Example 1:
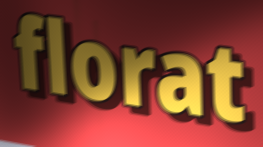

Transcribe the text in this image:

florat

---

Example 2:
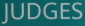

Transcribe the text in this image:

JUDGES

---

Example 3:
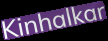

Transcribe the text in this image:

Kinhalkar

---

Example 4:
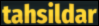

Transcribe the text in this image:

tahsildar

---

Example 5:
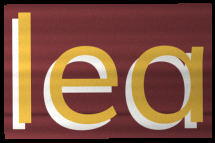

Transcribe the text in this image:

lea